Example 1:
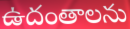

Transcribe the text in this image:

ఉదంతాలను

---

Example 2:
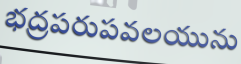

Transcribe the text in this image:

భద్రపరుపవలయును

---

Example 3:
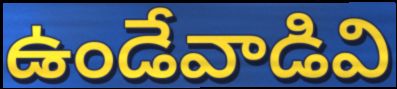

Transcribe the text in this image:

ఉండేవాడివి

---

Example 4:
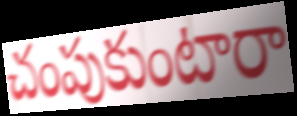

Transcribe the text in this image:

చంపుకుంటారా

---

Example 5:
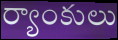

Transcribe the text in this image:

ర్యాంకులు